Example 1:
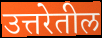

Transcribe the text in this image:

उत्तरेतील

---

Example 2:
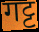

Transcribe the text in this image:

गट्ट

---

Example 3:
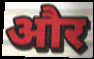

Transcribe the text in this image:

और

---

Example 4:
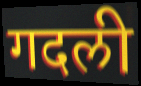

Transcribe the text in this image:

गदली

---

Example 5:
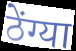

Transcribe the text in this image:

ठेंग्या